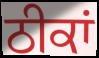
ਠੀਕਾਂ